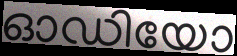
ഓഡിയോ